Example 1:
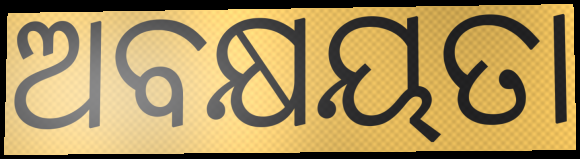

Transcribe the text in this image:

ଅବକ୍ଷୟତା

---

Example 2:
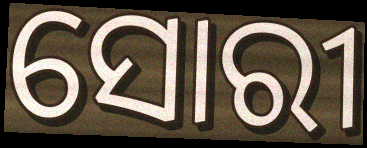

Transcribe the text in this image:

ସୋରୀ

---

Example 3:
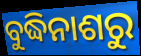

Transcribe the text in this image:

ବୁଦ୍ଧିନାଶରୁ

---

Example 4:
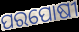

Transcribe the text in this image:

ପରପୋଷୀ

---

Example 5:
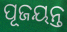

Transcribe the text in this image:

ପୂଜୟନ୍ତ